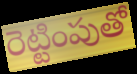
రెట్టింపుతో